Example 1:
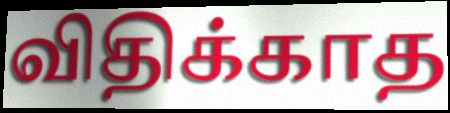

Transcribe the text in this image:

விதிக்காத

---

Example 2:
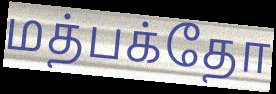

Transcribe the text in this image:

மத்பக்தோ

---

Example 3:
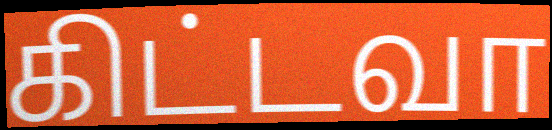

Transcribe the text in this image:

கிட்டவா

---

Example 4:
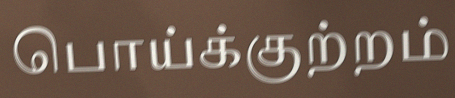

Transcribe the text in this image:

பொய்க்குற்றம்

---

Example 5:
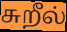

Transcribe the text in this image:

சுறீல்